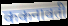
ककनावती